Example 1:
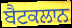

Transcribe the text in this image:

ਬੈਟਕਲਾਨ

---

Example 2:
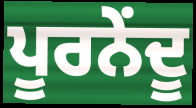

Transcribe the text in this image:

ਪੂਰਨੇਂਦੂ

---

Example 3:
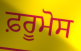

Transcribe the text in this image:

ਫ਼ਰੂਮੋਸ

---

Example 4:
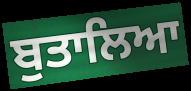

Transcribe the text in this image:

ਬੁਤਾਲਿਆ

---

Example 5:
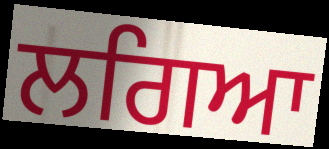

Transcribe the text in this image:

ਲਗਿਆ